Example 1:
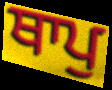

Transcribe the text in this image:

ਥਾਪੁ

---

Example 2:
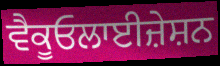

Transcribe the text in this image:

ਵੈਕੂਓਲਾਈਜ਼ੇਸ਼ਨ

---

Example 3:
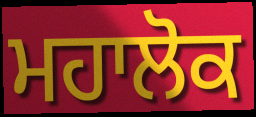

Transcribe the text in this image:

ਮਹਾਲੋਕ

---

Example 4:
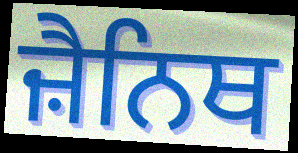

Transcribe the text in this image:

ਜ਼ੈਨਿਥ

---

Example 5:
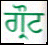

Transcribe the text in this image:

ਗ੍ਰੌਟ